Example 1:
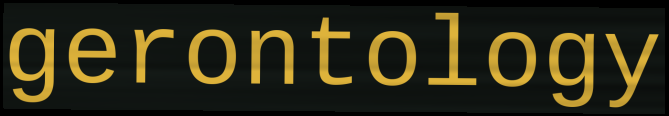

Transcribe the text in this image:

gerontology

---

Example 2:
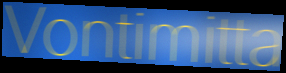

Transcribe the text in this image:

Vontimitta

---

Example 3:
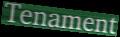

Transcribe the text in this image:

Tenament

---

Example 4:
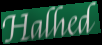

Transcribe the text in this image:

Halhed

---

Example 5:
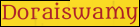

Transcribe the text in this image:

Doraiswamy